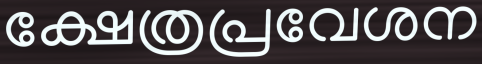
ക്ഷേത്രപ്രവേശന